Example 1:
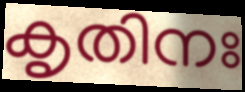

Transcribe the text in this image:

കൃതിനഃ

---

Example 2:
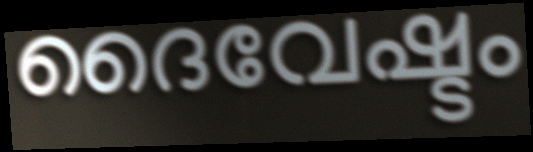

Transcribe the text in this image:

ദൈവേഷ്ടം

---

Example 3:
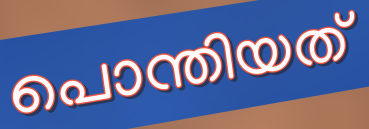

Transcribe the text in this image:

പൊന്തിയത്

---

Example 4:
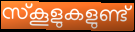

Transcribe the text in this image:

സ്കൂളുകളുണ്ട്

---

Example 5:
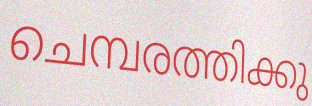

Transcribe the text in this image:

ചെമ്പരത്തിക്കു